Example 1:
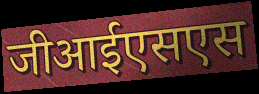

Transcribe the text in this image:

जीआईएसएस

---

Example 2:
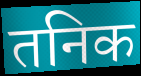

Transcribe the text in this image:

तनिक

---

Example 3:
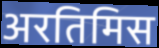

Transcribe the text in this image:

अरतिमिस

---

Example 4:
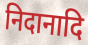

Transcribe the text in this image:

निदानादि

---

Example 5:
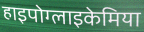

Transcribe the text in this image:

हाइपोग्लाइकेमिया